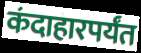
कंदाहारपर्यंत